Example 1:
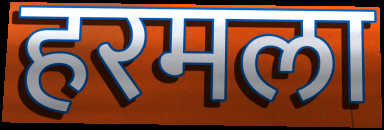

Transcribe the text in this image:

हरमला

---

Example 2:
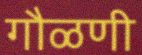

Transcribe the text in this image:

गौळणी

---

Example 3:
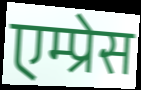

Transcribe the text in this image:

एम्प्रेस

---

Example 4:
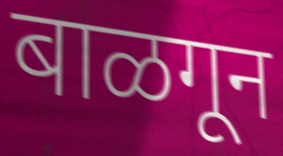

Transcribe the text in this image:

बाळगून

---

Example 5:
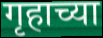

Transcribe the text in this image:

गृहाच्या